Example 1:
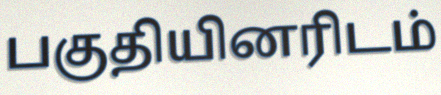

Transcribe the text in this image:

பகுதியினரிடம்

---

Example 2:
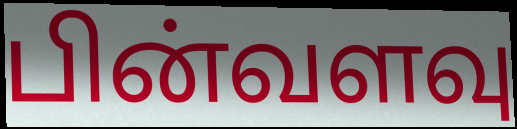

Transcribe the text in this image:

பின்வளவு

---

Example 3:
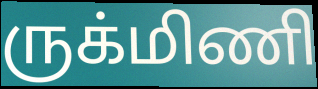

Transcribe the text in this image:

ருக்மிணி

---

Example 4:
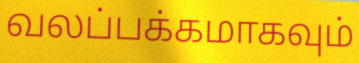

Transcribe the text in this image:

வலப்பக்கமாகவும்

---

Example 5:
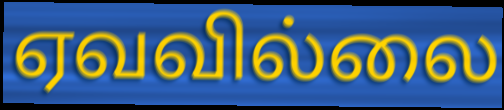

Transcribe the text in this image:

ஏவவில்லை